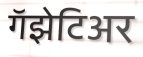
गॅझेटिअर